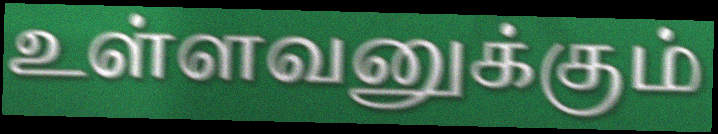
உள்ளவனுக்கும்